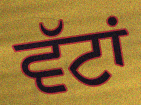
ਵੱਟਾਂ